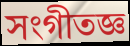
সংগীতজ্ঞ